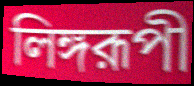
লিঙ্গরূপী